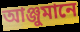
আঞ্জুমানে